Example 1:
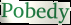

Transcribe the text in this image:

Pobedy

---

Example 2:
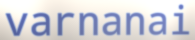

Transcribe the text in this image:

varnanai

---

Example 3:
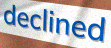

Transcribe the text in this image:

declined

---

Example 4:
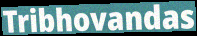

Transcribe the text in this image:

Tribhovandas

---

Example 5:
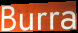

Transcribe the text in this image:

Burra